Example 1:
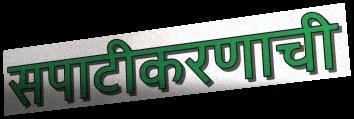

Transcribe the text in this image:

सपाटीकरणाची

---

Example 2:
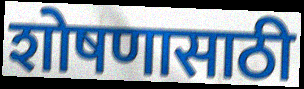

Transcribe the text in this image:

शोषणासाठी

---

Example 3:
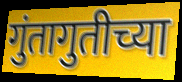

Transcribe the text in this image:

गुंतागुतीच्या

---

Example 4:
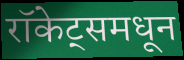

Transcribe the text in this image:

रॉकेट्समधून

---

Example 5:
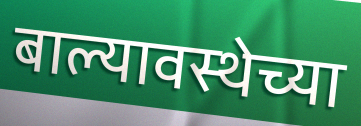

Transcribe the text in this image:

बाल्यावस्थेच्या